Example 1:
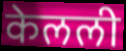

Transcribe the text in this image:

केलली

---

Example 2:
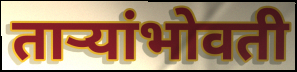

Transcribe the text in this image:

ताऱ्यांभोवती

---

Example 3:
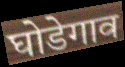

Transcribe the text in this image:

घोडेगाव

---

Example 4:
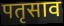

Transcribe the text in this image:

पतृसाव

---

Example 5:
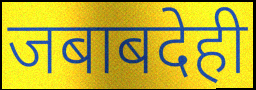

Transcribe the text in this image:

जबाबदेही